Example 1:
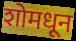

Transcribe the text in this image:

शोमधून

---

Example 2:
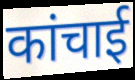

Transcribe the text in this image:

कांचाई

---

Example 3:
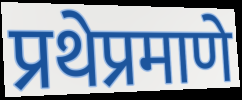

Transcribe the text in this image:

प्रथेप्रमाणे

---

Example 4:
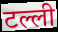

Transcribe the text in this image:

टल्ली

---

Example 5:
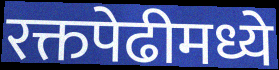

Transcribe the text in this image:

रक्तपेढीमध्ये